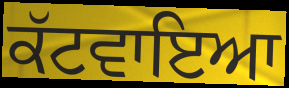
ਕੱਟਵਾਇਆ